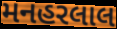
મનહરલાલ